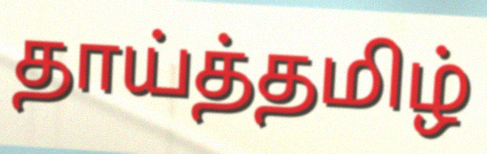
தாய்த்தமிழ்